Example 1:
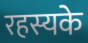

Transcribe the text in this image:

रहस्यके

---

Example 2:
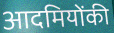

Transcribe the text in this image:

आदमियोंकी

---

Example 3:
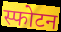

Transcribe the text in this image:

स्फोटन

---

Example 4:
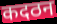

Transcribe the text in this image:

कदठन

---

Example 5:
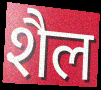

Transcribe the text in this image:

शैल